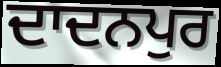
ਦਾਦਨਪੁਰ